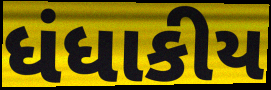
ધંધાકીય